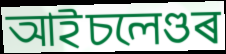
আইচলেণ্ডৰ